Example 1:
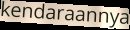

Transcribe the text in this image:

kendaraannya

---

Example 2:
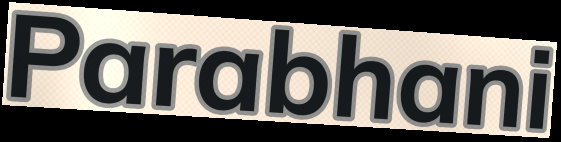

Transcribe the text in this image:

Parabhani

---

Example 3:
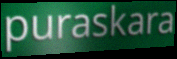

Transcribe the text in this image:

puraskara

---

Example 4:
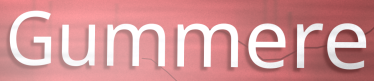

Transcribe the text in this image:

Gummere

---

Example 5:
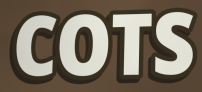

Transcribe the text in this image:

COTS